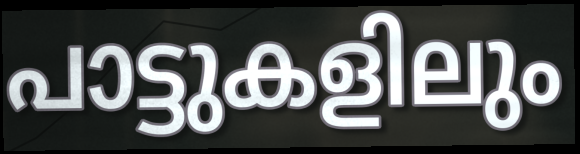
പാട്ടുകളിലും